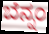
ಬೆನ್ನಂ